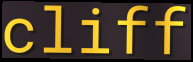
cliff